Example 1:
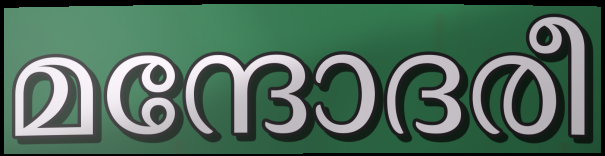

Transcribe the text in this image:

മന്ദോദരീ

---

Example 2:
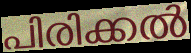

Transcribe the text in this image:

പിരിക്കൽ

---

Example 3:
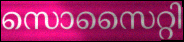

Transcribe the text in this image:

സൊസൈറ്റി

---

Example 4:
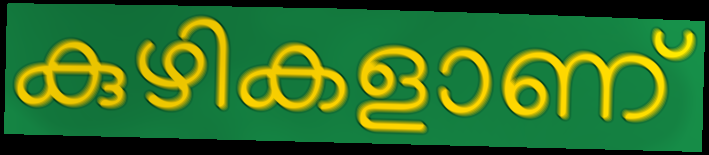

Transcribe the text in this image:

കുഴികളാണ്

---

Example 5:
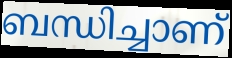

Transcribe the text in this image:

ബന്ധിച്ചാണ്